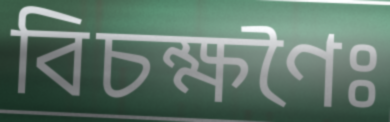
বিচক্ষণৈঃ